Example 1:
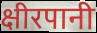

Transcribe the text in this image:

क्षीरपानी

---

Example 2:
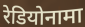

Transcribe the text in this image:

रेडियोनामा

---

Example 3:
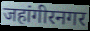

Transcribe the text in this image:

जहांगीरनगर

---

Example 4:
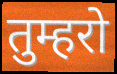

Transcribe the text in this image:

तुम्हरो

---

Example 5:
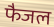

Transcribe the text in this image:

फैजल